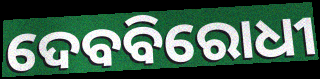
ଦେବବିରୋଧୀ